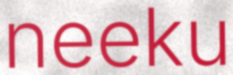
neeku